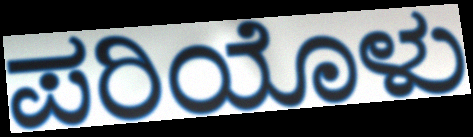
ಪರಿಯೊಳು